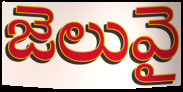
జెలువై